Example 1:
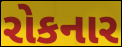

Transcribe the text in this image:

રોકનાર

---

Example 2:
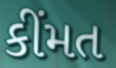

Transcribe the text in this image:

કીંમત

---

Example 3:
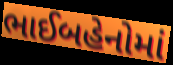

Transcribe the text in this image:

ભાઈબહેનોમાં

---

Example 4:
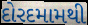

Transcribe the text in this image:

દોરદમામથી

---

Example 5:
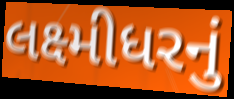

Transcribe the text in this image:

લક્ષ્મીધરનું